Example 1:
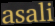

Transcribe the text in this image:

asali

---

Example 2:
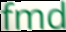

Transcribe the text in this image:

fmd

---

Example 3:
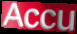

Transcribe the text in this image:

Accu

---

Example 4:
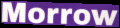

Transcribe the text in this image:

Morrow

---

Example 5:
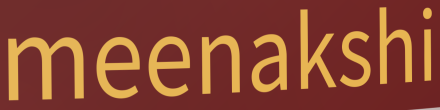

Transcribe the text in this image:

meenakshi